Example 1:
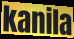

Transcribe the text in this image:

kanila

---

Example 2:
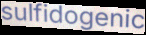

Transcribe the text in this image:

sulfidogenic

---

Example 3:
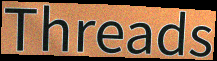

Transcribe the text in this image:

Threads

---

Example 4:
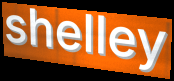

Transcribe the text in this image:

shelley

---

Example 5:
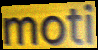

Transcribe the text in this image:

moti